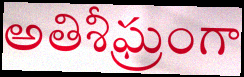
అతిశీఘ్రంగా